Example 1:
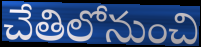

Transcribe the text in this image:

చేతిలోనుంచి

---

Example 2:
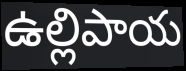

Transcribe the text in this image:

ఉల్లిపాయ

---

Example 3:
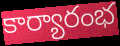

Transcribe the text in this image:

కార్యారంభ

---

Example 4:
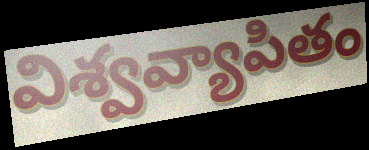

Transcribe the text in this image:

విశ్వవ్యాపితం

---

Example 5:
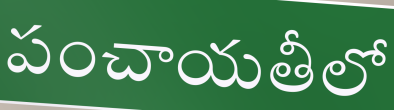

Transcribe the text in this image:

పంచాయతీలో